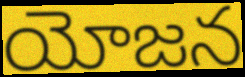
యోజన